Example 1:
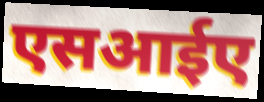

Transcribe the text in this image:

एसआईए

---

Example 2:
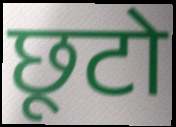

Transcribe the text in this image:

छूटो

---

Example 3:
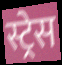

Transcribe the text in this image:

स्ट्रेस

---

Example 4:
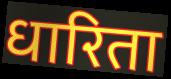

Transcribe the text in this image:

धारिता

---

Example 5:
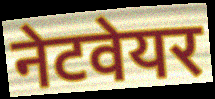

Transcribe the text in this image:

नेटवेयर